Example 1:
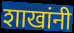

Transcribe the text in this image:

शाखांनी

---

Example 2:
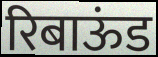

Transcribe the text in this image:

रिबाऊंड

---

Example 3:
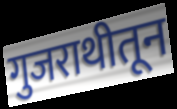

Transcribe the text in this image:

गुजराथीतून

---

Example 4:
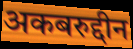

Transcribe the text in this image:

अकबरुद्दीन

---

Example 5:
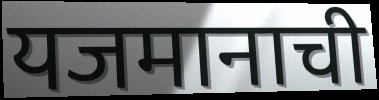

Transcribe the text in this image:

यजमानाची